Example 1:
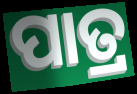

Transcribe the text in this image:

ପାତ୍ର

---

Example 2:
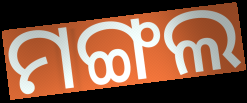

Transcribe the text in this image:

ମଙ୍ଗଲ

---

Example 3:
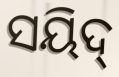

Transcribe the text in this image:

ସୟିଦ୍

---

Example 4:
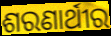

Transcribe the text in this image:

ଶରଣାର୍ଥୀର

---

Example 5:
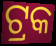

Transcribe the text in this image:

ଟ୍ରକ